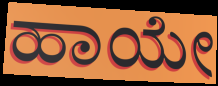
ಹಾಯೇ